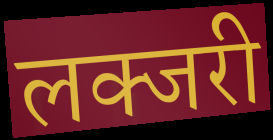
लक्जरी